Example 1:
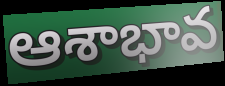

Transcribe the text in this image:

ఆశాభావ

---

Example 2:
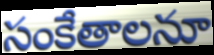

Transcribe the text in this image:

సంకేతాలనూ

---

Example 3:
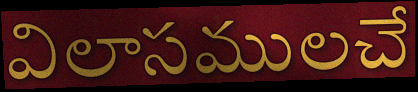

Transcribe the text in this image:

విలాసములచే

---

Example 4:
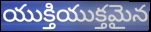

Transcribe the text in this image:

యుక్తియుక్తమైన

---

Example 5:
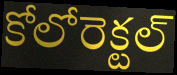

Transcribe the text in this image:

కోలోరెక్టల్